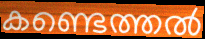
കണ്ടെത്തൽ